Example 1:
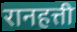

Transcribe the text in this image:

रानहत्ती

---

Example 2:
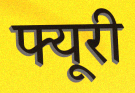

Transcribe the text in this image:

फ्यूरी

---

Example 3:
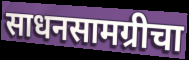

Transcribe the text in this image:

साधनसामग्रीचा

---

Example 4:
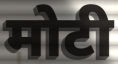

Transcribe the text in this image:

मोटी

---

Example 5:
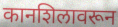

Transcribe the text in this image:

कानशिलावरून